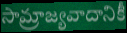
సామ్రాజ్యవాదానికీ